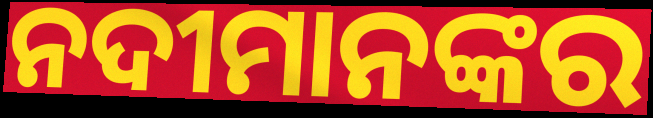
ନଦୀମାନଙ୍କର